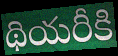
థియరీకి